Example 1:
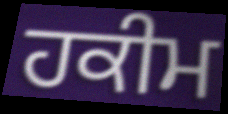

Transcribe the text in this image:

ਹਕੀਮ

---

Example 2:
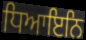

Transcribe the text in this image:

ਧਿਆਇਨਿ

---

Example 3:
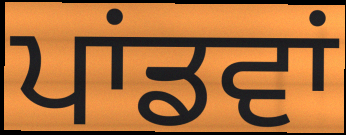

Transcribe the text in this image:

ਪਾਂਡਵਾਂ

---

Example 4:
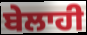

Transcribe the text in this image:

ਬੇਲਾਹੀ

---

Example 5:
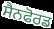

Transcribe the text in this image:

ਸੈਨਫੋਰਡ